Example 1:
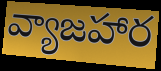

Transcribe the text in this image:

వ్యాజహార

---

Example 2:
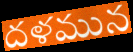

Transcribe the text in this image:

దళమున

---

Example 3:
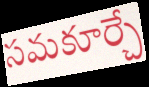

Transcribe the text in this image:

సమకూర్చే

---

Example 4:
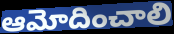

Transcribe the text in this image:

ఆమోదించాలి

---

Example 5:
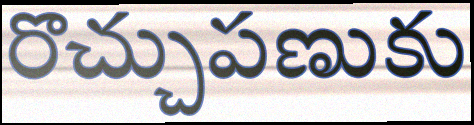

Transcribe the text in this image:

రొచ్చుపణుకు